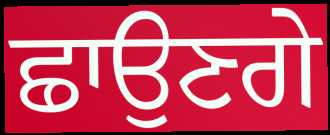
ਛਾਉਣਗੇ